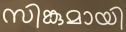
സിങ്കുമായി